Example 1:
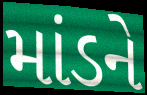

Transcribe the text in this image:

માંડને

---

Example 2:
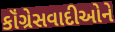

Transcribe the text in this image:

કૉંગ્રેસવાદીઓને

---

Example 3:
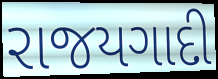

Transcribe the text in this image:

રાજયગાદી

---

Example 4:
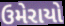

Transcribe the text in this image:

ઉમેરાયો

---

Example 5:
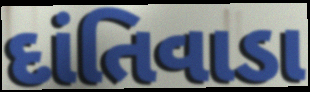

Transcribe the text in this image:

દાંતિવાડા